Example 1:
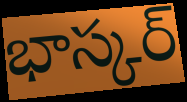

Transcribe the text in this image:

భాస్కర్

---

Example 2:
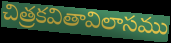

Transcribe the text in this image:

చిత్రకవితావిలాసము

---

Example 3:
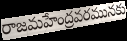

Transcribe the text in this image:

రాజమహేంద్రవరమునకు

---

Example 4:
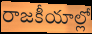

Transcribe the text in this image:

రాజకీయాల్లో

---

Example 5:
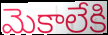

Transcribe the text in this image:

మెకాలేకి